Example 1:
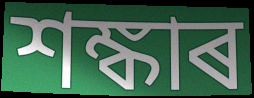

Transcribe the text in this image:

শঙ্কাৰ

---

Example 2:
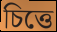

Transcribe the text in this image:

চিত্তে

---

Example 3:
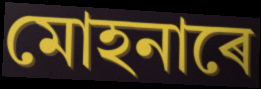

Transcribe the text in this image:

মোহনাৰে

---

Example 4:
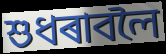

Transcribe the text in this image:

শুধৰাবলৈ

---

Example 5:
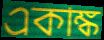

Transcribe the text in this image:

একাঙ্ক